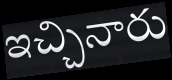
ఇచ్చినారు